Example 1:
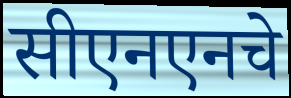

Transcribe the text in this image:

सीएनएनचे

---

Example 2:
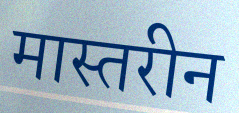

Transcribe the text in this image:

मास्तरीन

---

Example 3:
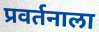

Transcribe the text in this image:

प्रवर्तनाला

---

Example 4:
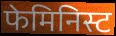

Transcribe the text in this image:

फेमिनिस्ट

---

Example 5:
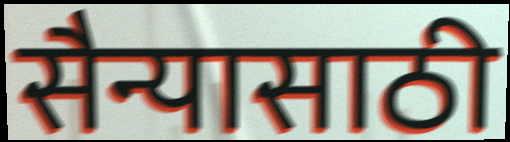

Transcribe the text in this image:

सैन्यासाठी